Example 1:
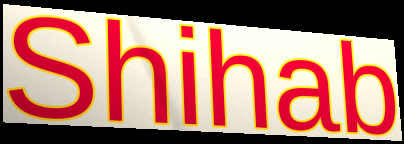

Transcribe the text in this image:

Shihab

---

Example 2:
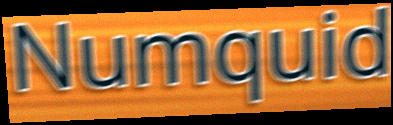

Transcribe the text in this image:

Numquid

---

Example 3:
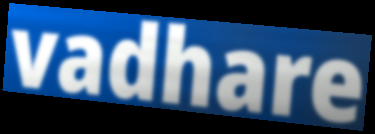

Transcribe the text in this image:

vadhare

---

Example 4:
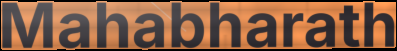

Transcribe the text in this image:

Mahabharath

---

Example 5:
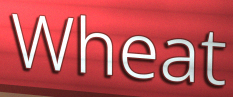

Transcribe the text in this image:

Wheat